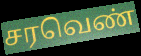
சரவெண்